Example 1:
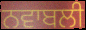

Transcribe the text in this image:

ਨਵਾਬਲੀ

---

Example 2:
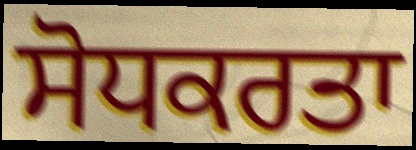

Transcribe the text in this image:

ਸੋਧਕਰਤਾ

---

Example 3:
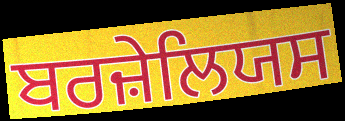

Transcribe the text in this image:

ਬਰਜ਼ੇਲਿਯਸ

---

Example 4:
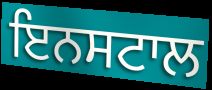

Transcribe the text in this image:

ਇਨਸਟਾਲ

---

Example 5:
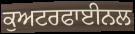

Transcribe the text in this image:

ਕੁਅਟਰਫਾਈਨਲ